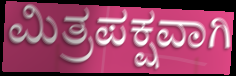
ಮಿತ್ರಪಕ್ಷವಾಗಿ